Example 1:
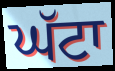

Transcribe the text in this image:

ਘੱਟਾ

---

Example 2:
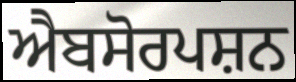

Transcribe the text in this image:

ਐਬਸੋਰਪਸ਼ਨ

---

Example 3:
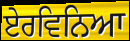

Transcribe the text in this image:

ਏਰਵਿਨਿਆ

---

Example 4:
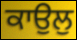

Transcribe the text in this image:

ਕਾਉਲੁ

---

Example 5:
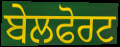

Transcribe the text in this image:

ਬੇਲਫੋਰਟ